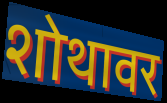
शोथावर